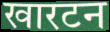
खारटन